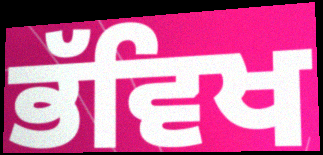
ਭੱਵਿਖ